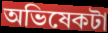
অভিষেকটা